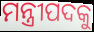
ମନ୍ତ୍ରୀପଦକୁ